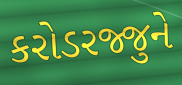
કરોડરજ્જુને